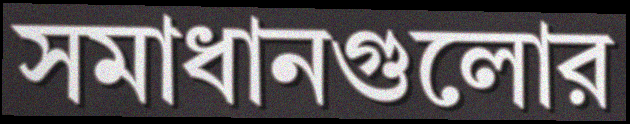
সমাধানগুলোর